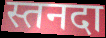
स्तनदा